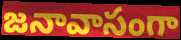
జనావాసంగా